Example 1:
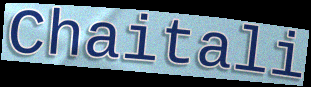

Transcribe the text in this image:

Chaitali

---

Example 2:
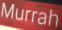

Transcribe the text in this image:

Murrah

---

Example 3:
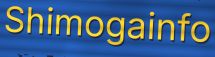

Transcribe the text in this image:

Shimogainfo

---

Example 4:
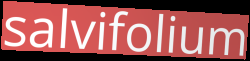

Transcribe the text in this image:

salvifolium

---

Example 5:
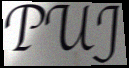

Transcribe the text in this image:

PUJ